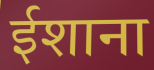
ईशाना